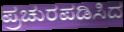
ಪ್ರಚುರಪಡಿಸಿದ